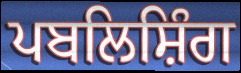
ਪਬਲਿਸ਼ਿੰਗ